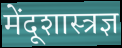
मेंदूशास्त्रज्ञ